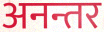
अनन्तर